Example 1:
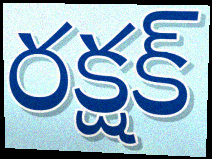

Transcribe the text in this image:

రక్షక్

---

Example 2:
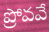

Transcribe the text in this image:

ప్రోవవే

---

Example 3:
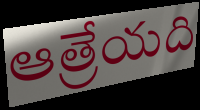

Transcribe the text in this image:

ఆత్రేయది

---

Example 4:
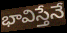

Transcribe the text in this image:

భావిస్తేనే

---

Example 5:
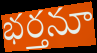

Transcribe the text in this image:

భర్తనూ